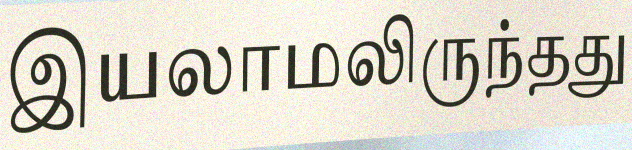
இயலாமலிருந்தது